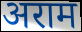
अराम